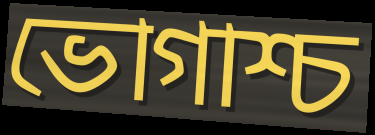
ভোগাশ্চ